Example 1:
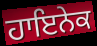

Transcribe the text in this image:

ਹਾਇਨੇਕ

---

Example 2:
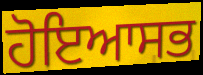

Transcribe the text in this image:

ਹੋਇਆਸਭ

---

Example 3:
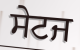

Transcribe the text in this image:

ਸੇਟਜ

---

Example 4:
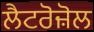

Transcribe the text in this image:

ਲੈਟਰੋਜ਼ੋਲ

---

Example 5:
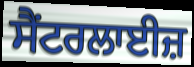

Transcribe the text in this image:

ਸੈਂਟਰਲਾਈਜ਼